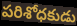
పరిశోధకుడు